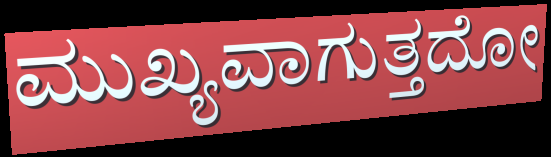
ಮುಖ್ಯವಾಗುತ್ತದೋ